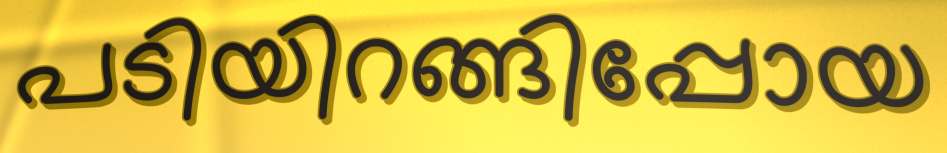
പടിയിറങ്ങിപ്പോയ